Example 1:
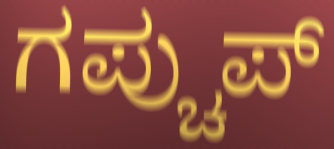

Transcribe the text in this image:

ಗಪ್ಚುಪ್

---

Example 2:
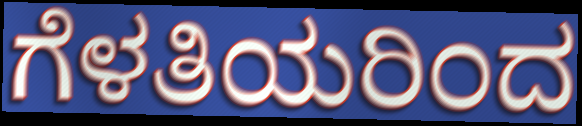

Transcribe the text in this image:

ಗೆಳತಿಯರಿಂದ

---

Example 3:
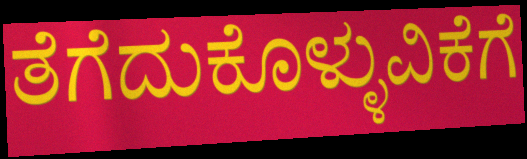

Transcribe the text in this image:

ತೆಗೆದುಕೊಳ್ಳುವಿಕೆಗೆ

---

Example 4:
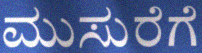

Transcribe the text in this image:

ಮುಸುರೆಗೆ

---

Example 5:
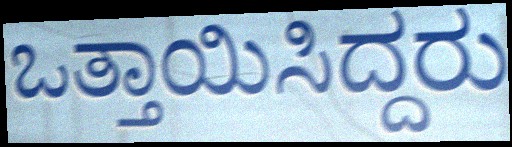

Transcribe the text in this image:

ಒತ್ತಾಯಿಸಿದ್ದರು